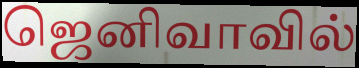
ஜெனிவாவில்